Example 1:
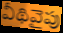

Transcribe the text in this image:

వీథివైపు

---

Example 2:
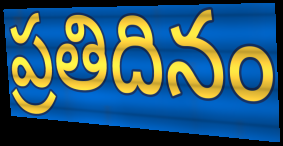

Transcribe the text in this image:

ప్రతిదినం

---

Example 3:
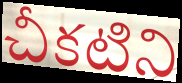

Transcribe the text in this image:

చీకటిని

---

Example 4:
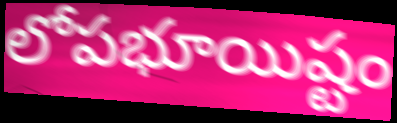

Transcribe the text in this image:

లోపభూయిష్టం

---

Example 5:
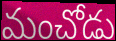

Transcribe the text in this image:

మంచోడు